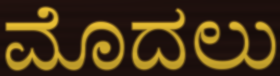
ಮೊದಲು